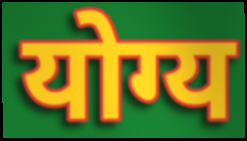
योग्य